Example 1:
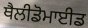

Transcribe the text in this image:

ਥੈਲੀਡੋਮਾਈਡ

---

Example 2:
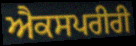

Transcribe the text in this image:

ਐਕਸਪਰੀਰੀ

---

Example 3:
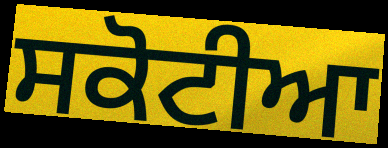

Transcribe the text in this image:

ਸਕੋਟੀਆ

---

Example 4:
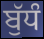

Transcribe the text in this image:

ਬੁੱਧੰ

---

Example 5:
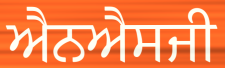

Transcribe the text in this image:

ਐਨਐਸਜੀ